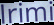
Irimi